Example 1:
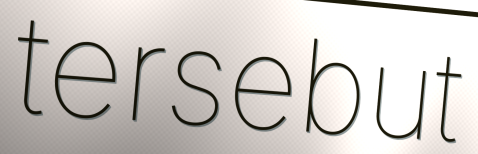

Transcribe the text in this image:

tersebut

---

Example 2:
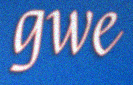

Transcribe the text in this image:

gwe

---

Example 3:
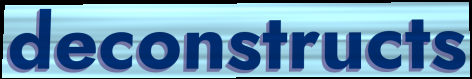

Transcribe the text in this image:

deconstructs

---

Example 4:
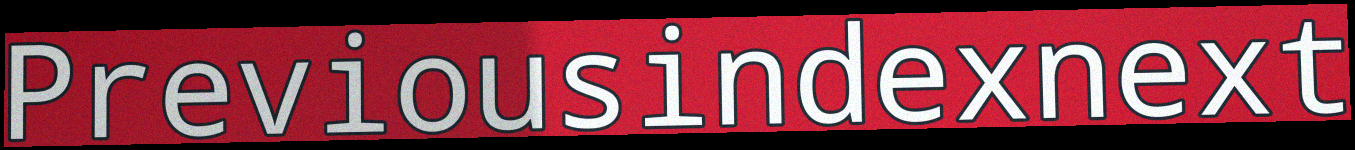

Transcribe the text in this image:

Previousindexnext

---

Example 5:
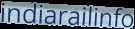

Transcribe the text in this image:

indiarailinfo